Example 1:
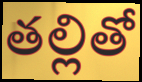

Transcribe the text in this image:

తల్లితో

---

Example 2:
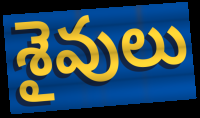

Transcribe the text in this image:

శైవులు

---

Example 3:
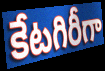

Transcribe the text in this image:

కేటగిరీగా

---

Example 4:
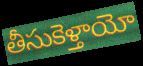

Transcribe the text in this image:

తీసుకెళ్తాయో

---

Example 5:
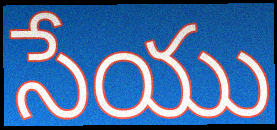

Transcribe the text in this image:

సేయు